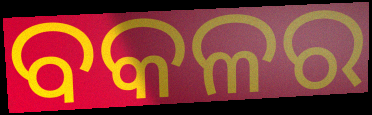
ବକଳର